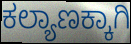
ಕಲ್ಯಾಣಕ್ಕಾಗಿ